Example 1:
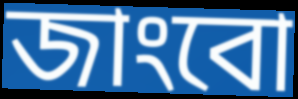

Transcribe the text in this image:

জাংবো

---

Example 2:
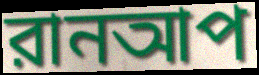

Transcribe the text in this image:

রানআপ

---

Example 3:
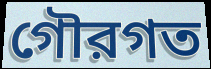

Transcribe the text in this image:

গৌরগত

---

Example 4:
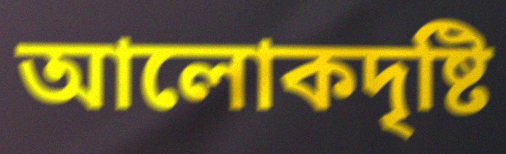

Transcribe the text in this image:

আলোকদৃষ্টি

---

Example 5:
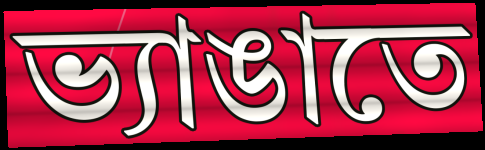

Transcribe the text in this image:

ভ্যাঙাতে